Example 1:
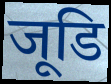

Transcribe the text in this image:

जूडि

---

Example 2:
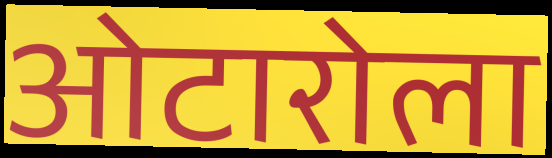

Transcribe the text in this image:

ओटारोला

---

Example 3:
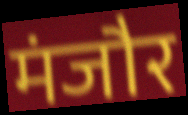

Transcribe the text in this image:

मंजौर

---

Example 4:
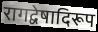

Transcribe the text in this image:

रागद्वेषादिरूप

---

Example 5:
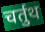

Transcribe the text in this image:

चर्तुथ